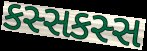
કસ્સકસ્સ